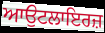
ਆਉਟਲਾਇਰਜ਼